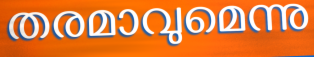
തരമാവുമെന്നു